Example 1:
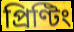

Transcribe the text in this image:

প্ৰিণ্টিং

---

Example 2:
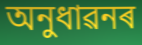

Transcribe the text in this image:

অনুধাৱনৰ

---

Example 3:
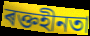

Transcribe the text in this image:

ৰক্তহীনতা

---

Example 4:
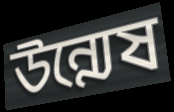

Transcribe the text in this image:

উন্মেষ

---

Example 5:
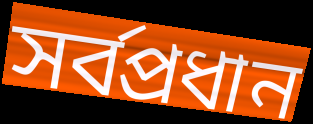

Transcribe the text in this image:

সৰ্বপ্ৰধান